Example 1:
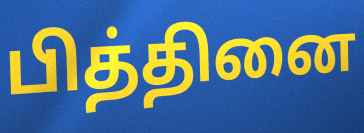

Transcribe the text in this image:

பித்தினை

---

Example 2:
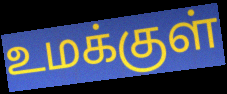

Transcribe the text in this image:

உமக்குள்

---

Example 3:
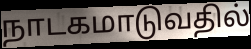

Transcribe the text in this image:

நாடகமாடுவதில்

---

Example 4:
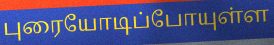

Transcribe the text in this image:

புரையோடிப்போயுள்ள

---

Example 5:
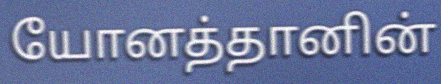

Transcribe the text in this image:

யோனத்தானின்